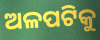
ଅଳପଟିକୁ